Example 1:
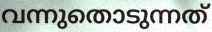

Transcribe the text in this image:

വന്നുതൊടുന്നത്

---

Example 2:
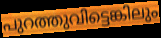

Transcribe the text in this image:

പുറത്തുവിട്ടെങ്കിലും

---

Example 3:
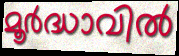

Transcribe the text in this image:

മൂർദ്ധാവിൽ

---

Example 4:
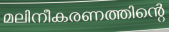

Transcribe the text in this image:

മലിനീകരണത്തിന്റെ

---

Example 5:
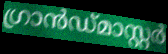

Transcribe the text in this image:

ഗ്രാൻഡ്മാസ്റ്റർ